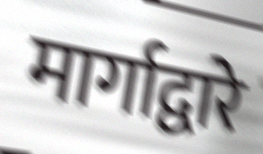
मार्गाद्वारे